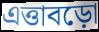
এত্তাবড়ো